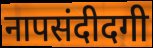
नापसंदीदगी